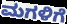
ಮಗಳಿಗೆ